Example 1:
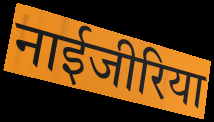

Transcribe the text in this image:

नाईजीरिया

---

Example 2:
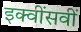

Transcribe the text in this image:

इक्वींसवीं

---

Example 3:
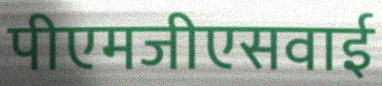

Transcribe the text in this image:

पीएमजीएसवाई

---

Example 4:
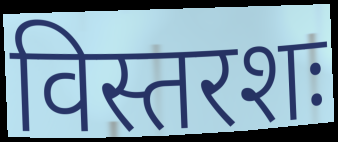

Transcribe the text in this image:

विस्तरशः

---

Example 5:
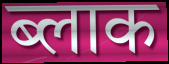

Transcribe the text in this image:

ब्लाक